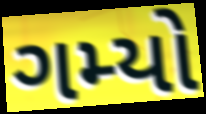
ગમ્યો